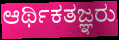
ಆರ್ಥಿಕತಜ್ಞರು